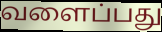
வளைப்பது